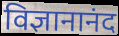
विज्ञानानंद